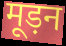
मूड़न